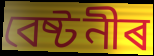
বেষ্টনীৰ